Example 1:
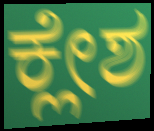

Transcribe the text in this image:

ಕ್ಲೇಶ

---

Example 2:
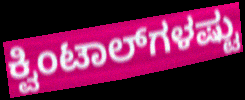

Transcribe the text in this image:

ಕ್ವಿಂಟಾಲ್‌ಗಳಷ್ಟು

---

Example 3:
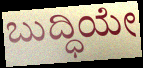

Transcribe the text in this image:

ಬುದ್ಧಿಯೇ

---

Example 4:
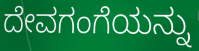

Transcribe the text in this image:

ದೇವಗಂಗೆಯನ್ನು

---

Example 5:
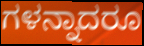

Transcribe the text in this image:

ಗಳನ್ನಾದರೂ